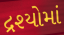
દ્રશ્યોમાં